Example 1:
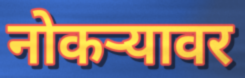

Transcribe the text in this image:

नोकऱ्यावर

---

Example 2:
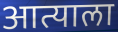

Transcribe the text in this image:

आत्याला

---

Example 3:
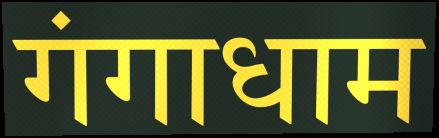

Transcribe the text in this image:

गंगाधाम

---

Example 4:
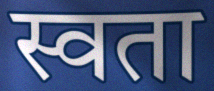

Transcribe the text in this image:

स्वता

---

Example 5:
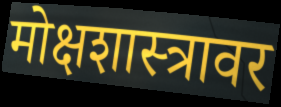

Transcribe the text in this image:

मोक्षशास्त्रावर